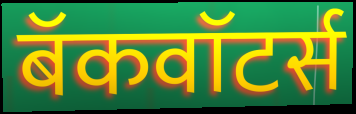
बॅकवॉटर्स